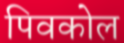
पिवकोल